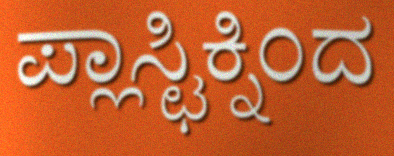
ಪ್ಲಾಸ್ಟಿಕ್ನಿಂದ